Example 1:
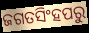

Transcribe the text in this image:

ଜଗତସିଂହପରୁ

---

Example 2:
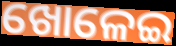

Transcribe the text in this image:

ଖୋଳେଇ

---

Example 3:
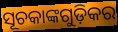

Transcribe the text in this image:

ସୂଚକାଙ୍କଗୁଡ଼ିକର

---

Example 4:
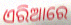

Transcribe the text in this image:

ଏରିଆରେ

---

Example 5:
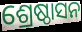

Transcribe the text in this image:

ଶ୍ରେଷ୍ଠାସନ